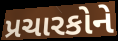
પ્રચારકોને